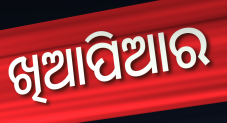
ଖିଆପିଆର